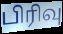
பிரிவு